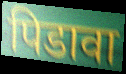
पिडावा